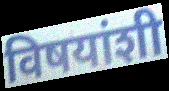
विषयांशी